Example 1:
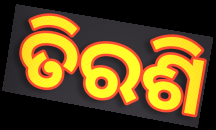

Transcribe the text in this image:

ତିରଶି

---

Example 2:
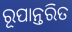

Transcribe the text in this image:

ରୂପାନ୍ତରିତ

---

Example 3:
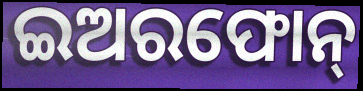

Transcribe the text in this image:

ଇଅରଫୋନ୍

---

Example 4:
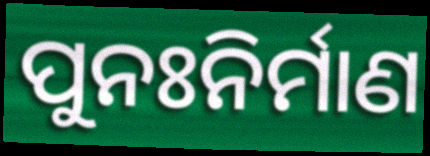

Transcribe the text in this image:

ପୁନଃନିର୍ମାଣ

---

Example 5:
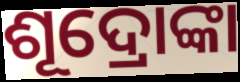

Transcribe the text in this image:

ଶୂଦ୍ରୋଙ୍କା